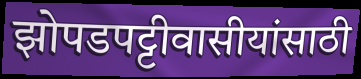
झोपडपट्टीवासीयांसाठी